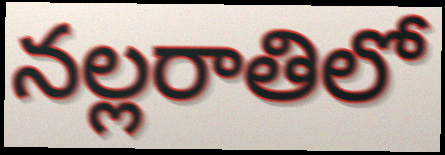
నల్లరాతిలో